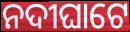
ନଦୀଘାଟେ